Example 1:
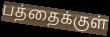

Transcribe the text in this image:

பத்தைக்குள்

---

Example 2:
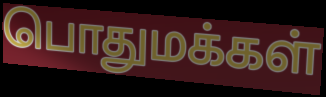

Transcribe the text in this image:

பொதுமக்கள்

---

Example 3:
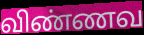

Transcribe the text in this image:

விண்ணவ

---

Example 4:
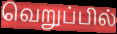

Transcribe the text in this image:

வெறுப்பில்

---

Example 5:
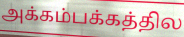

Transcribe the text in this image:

அக்கம்பக்கத்தில